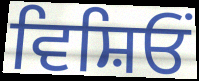
ਵਿਸ਼ਿਓਂ